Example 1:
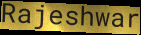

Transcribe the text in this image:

Rajeshwar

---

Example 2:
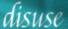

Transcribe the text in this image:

disuse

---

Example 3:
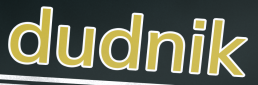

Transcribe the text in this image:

dudnik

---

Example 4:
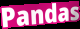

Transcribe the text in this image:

Pandas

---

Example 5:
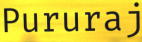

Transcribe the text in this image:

Pururaj